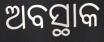
ଅବସ୍ଥାକ